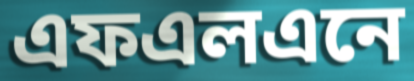
এফএলএনে